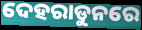
ଦେହରାଡୁନରେ